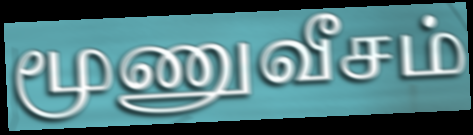
மூணுவீசம்